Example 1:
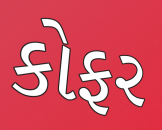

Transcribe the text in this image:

કોફર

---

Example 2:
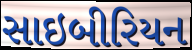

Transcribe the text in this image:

સાઇબીરિયન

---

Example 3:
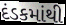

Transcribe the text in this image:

દંડકમાંથી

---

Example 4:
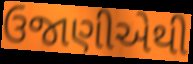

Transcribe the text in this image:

ઉજાણીએથી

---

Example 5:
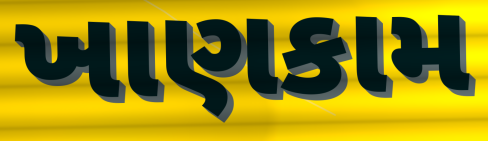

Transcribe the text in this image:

ખાણકામ